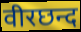
वीरछन्द